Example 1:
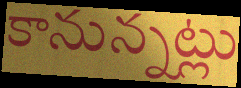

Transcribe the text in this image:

కానున్నట్లు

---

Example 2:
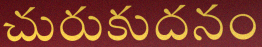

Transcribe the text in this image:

చురుకుదనం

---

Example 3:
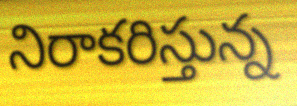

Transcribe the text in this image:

నిరాకరిస్తున్న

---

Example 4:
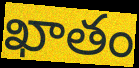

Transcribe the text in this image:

ఖాతం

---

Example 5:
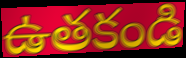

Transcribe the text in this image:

ఉతకండి